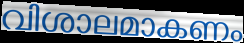
വിശാലമാകണം